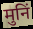
मुनिं